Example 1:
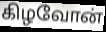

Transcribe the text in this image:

கிழவோன்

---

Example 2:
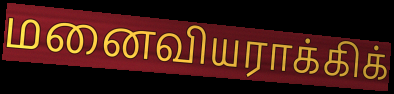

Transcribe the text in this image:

மனைவியராக்கிக்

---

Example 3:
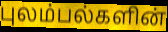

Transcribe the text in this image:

புலம்பல்களின்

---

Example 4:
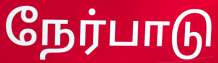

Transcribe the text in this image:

நேர்பாடு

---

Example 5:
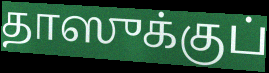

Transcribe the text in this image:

தாஸுக்குப்